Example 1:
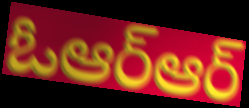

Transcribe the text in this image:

ఓఆర్ఆర్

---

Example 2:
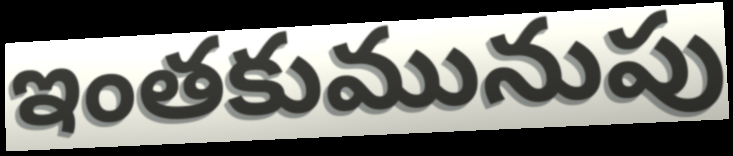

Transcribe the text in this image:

ఇంతకుమునుపు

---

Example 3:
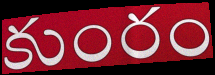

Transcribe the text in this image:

కుంరం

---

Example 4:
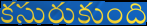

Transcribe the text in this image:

కసురుకుంది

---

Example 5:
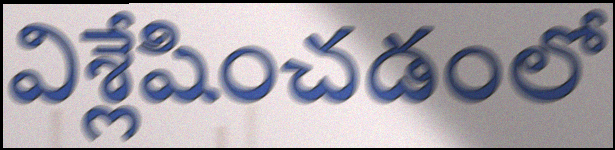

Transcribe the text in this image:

విశ్లేషించడంలో